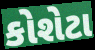
કોશેટા